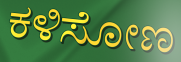
ಕಳಿಸೋಣ